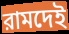
রামদেই